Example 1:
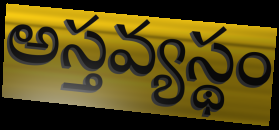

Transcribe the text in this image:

అస్తవ్యస్థం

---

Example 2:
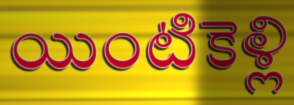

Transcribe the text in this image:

యింటికెళ్లి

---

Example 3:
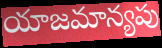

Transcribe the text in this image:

యాజమాన్యపు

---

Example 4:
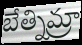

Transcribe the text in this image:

బేత్నిమ్రా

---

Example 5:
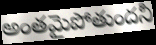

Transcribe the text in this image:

అంతమైపోతుందనీ